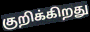
குறிக்கிறது